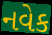
નવેક